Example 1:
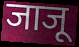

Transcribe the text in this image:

जाजू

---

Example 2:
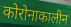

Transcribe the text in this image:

कोरोनाकालीन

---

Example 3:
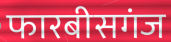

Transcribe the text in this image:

फारबीसगंज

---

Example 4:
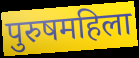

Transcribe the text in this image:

पुरुषमहिला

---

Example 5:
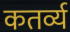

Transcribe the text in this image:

कतर्व्य